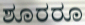
ಶೂರರೂ